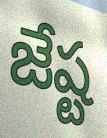
జేష్ట